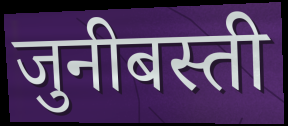
जुनीबस्ती